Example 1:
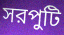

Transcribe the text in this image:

সরপুটি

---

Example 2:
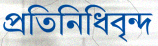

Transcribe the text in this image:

প্রতিনিধিবৃন্দ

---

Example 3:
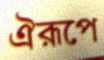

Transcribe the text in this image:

ঐরূপে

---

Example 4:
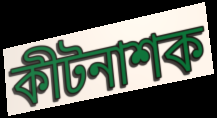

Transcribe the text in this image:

কীটনাশক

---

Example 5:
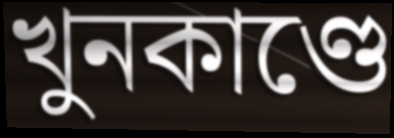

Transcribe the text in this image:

খুনকাণ্ডে